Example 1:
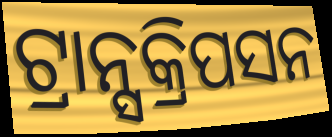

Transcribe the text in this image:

ଟ୍ରାନ୍ସକ୍ରିପସନ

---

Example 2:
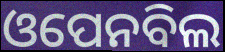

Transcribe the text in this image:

ଓପେନବିଲ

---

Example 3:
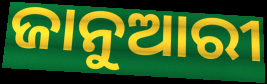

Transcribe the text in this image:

ଜାନୁଆରୀ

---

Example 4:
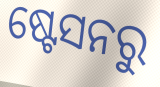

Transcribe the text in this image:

ଷ୍ଟେସନରୁ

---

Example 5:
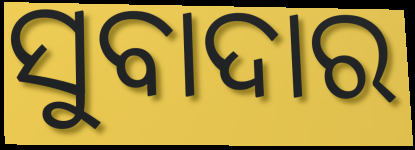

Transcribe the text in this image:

ସୁବାଦାର